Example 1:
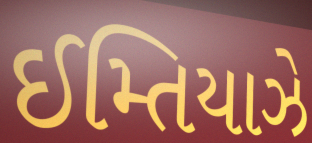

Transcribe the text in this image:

ઈમ્તિયાઝે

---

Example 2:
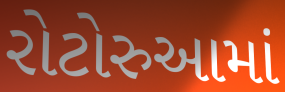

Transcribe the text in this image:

રોટોરુઆમાં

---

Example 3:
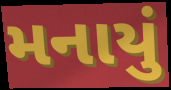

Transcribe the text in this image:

મનાયું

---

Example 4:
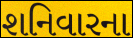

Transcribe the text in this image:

શનિવારના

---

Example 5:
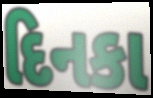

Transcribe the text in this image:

દિનકા